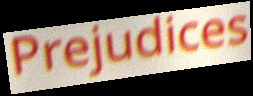
Prejudices